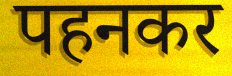
पहनकर